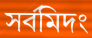
সর্বমিদং